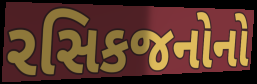
રસિકજનોનો